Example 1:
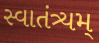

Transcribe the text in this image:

સ્વાતંત્ર્યમ્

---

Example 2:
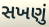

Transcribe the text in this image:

સખણું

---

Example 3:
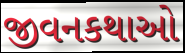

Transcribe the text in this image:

જીવનકથાઓ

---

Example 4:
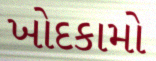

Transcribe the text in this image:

ખોદકામો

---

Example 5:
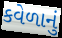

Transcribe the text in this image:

કવેળાનું